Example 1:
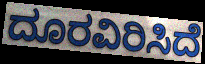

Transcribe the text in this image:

ದೂರವಿರಿಸಿದೆ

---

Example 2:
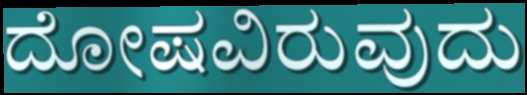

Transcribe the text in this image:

ದೋಷವಿರುವುದು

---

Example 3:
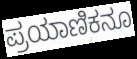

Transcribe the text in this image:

ಪ್ರಯಾಣಿಕನೂ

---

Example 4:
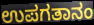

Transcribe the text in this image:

ಉಪಗತಾನಂ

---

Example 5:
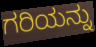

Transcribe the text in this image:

ಗರಿಯನ್ನು